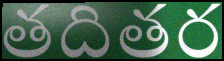
తదితర